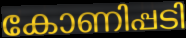
കോണിപ്പടി